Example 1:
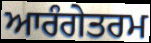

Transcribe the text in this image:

ਆਰੰਗੇਤਰਮ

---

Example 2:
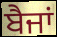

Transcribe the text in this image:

ਬੈਜਾਂ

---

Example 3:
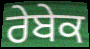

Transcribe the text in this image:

ਰੇਬੇਕ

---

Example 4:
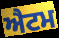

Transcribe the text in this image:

ਐਟਮ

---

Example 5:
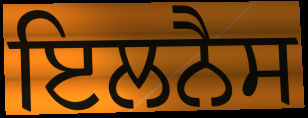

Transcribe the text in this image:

ਇਲਨੈਸ